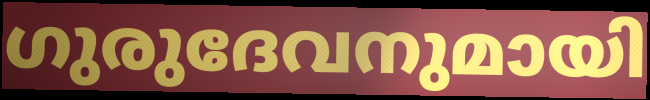
ഗുരുദേവനുമായി